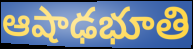
ఆషాఢభూతి